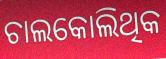
ଚାଲକୋଲିଥିକ